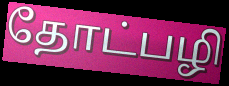
தோட்பழி